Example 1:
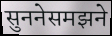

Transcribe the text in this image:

सुननेसमझने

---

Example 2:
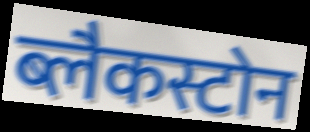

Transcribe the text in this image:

ब्लैकस्टोन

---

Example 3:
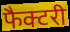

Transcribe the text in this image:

फैक्टरी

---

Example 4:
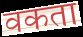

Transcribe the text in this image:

वकता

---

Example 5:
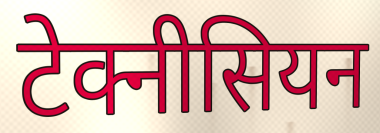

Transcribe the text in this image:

टेक्नीसियन